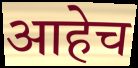
आहेच